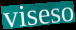
viseso